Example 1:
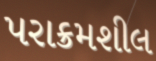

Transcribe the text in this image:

પરાક્રમશીલ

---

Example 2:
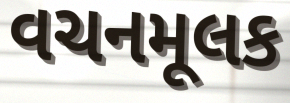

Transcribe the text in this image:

વચનમૂલક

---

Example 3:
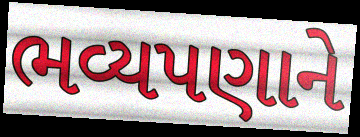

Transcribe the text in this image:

ભવ્યપણાને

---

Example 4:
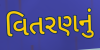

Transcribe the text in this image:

વિતરણનું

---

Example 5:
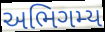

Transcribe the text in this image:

અભિગમ્ય